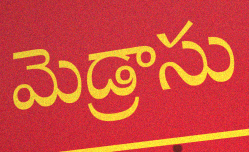
మెడ్రాసు